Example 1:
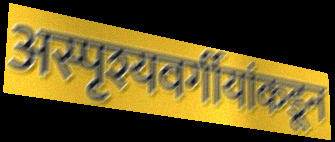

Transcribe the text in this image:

अस्पृश्यवर्गीयांकडून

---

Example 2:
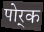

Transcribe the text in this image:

पोर्क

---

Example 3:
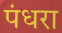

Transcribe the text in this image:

पंधरा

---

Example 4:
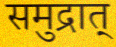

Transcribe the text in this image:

समुद्रात्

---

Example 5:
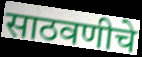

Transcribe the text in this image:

साठवणीचे